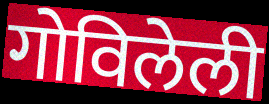
गोविलेली